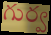
గుర్వ